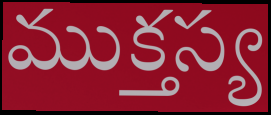
ముక్తస్య